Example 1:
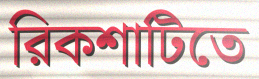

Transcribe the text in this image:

রিকশাটিতে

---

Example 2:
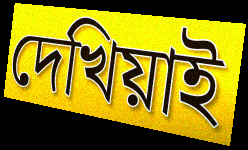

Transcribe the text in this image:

দেখিয়াই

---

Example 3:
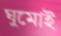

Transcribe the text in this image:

ঘুমোই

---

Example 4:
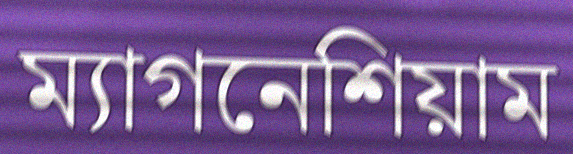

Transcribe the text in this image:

ম্যাগনেশিয়াম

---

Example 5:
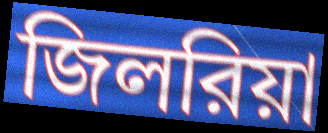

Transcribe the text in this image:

জিলরিয়া